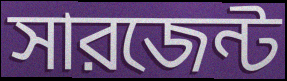
সারজেন্ট